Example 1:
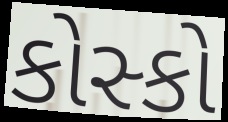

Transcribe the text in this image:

કોસ્કો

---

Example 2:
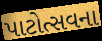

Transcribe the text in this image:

પાટોત્સવના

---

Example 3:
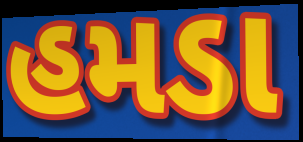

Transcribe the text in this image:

હમડા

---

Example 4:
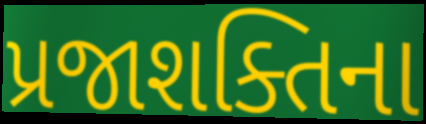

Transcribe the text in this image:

પ્રજાશક્તિના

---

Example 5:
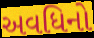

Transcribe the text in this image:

અવધિનો